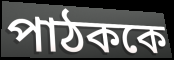
পাঠককে